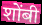
शोंबी